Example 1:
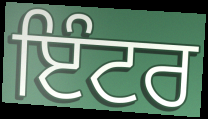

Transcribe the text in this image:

ਇੰਟਰ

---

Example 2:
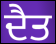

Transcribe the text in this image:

ਦੈਤ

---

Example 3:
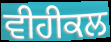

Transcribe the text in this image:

ਵੀਹੀਕਲ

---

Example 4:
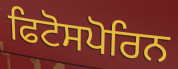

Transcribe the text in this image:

ਫਿਟੋਸਪੋਰਿਨ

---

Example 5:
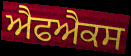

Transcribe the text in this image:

ਐਫਐਕਸ